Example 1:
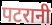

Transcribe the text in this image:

पटरानी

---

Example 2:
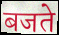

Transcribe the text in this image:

बजते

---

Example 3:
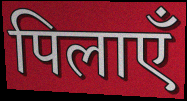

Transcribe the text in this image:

पिलाएँ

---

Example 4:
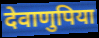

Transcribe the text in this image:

देवाणुपिया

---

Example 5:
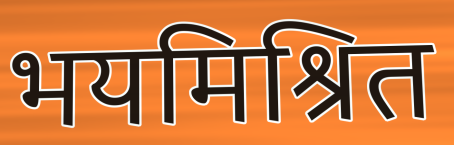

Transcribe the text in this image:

भयमिश्रित